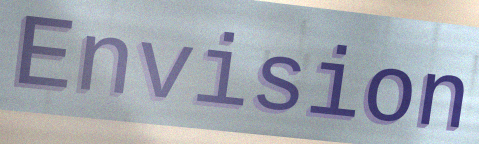
Envision